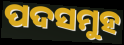
ପଦସମୁହ